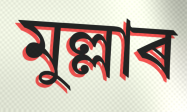
মুল্লাৰ